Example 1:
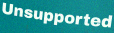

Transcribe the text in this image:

Unsupported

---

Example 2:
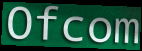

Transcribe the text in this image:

Ofcom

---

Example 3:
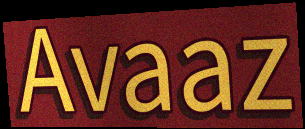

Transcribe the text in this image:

Avaaz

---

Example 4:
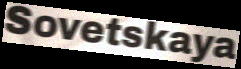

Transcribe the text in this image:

Sovetskaya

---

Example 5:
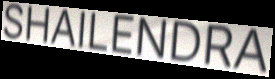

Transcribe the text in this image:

SHAILENDRA